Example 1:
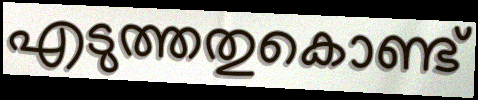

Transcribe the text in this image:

എടുത്തതുകൊണ്ട്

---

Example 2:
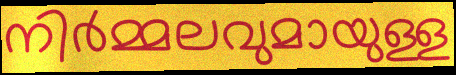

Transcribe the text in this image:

നിർമ്മലവുമായുള്ള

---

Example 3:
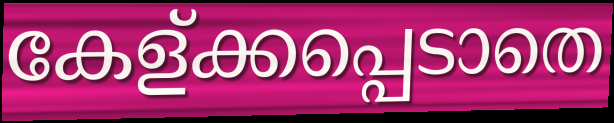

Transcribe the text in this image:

കേള്ക്കപ്പെടാതെ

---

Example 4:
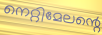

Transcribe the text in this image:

നെറ്റിമേലന്റെ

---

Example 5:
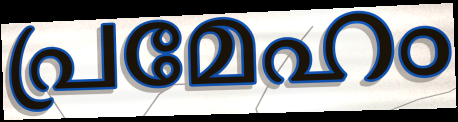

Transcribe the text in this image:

പ്രമേഹം